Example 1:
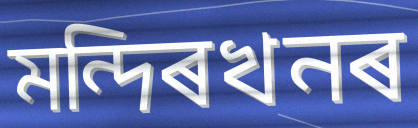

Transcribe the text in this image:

মন্দিৰখনৰ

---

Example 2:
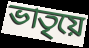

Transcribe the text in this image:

ভাতৃয়ে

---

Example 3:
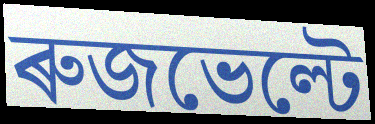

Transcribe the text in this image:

ৰুজভেল্টে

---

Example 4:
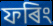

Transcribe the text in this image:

ফৰিং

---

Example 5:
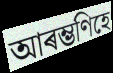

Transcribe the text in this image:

আৰম্ভণিহে